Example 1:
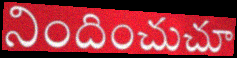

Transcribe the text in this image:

నిందించుచూ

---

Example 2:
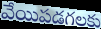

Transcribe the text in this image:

వేయిపడగలకు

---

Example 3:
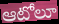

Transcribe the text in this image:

ఆటోలూ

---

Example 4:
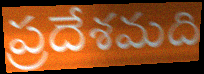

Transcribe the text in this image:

ప్రదేశమది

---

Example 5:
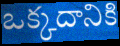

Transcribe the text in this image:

ఒక్కదానికి